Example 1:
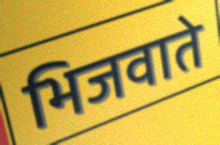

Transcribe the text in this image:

भिजवाते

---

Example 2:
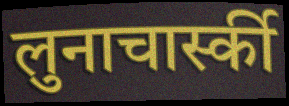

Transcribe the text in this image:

लुनाचार्स्की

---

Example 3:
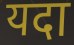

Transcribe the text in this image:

यदा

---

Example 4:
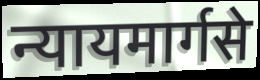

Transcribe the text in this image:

न्यायमार्गसे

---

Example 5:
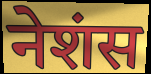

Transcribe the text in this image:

नेशंस